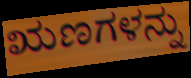
ಋಣಗಳನ್ನು